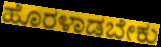
ಹೊರಳಾಡಬೇಕು